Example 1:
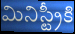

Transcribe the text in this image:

మినిస్ట్రీకి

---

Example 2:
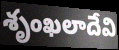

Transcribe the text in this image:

శృంఖలాదేవి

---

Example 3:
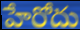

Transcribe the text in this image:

హేరోదు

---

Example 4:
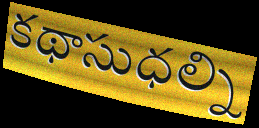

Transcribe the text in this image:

కథాసుధల్ని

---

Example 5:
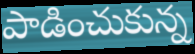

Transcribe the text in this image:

పాడించుకున్న